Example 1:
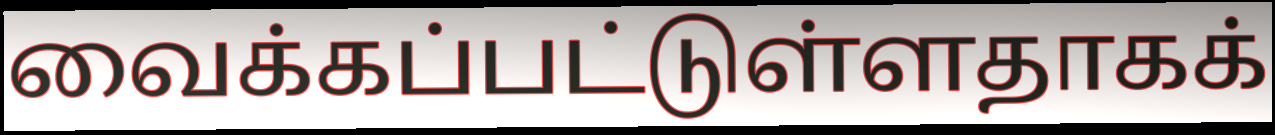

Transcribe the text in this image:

வைக்கப்பட்டுள்ளதாகக்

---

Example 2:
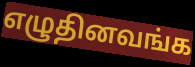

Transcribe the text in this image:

எழுதினவங்க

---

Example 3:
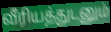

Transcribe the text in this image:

வீரியத்துடனும்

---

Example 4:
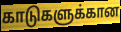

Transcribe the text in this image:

காடுகளுக்கான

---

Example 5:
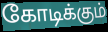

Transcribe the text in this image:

கோடிக்கும்